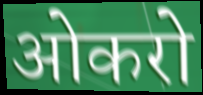
ओकरो